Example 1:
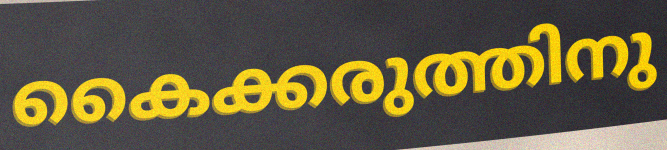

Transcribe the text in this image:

കൈക്കരുത്തിനു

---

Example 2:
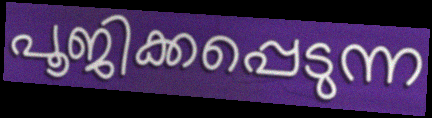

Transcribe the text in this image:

പൂജിക്കപ്പെടുന്ന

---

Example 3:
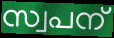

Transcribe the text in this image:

സ്വപന്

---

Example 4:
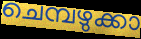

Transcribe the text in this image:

ചെമ്പഴുക്കാ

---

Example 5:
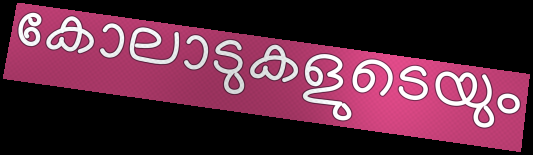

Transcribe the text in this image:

കോലാടുകളുടെയും